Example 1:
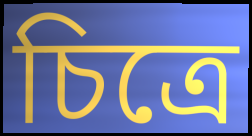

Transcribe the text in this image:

চিত্রে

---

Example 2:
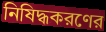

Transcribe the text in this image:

নিষিদ্ধকরণের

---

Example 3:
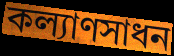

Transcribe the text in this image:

কল্যাণসাধন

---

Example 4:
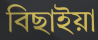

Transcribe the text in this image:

বিছাইয়া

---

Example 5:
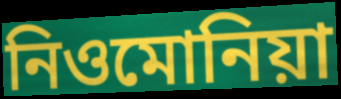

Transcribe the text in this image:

নিওমোনিয়া